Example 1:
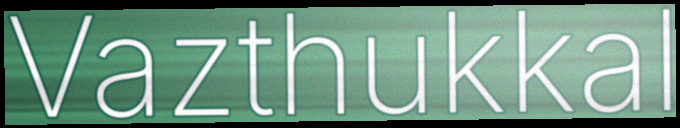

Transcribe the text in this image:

Vazthukkal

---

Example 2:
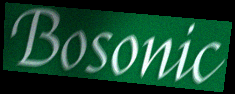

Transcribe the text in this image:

Bosonic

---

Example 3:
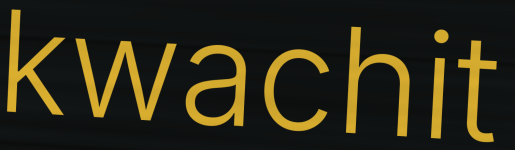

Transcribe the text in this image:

kwachit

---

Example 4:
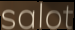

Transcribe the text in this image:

salot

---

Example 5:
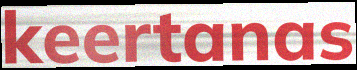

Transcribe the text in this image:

keertanas